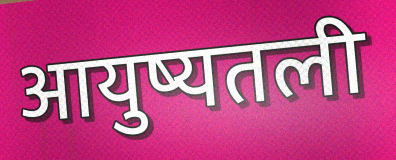
आयुष्यतली